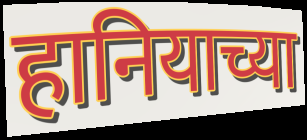
हानियाच्या